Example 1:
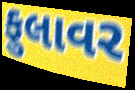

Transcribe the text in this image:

ફુલાવર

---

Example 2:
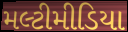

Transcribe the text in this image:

મલ્ટીમીડિયા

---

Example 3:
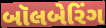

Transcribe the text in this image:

બૉલબેરિંગ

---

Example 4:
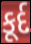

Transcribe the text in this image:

કૂર્દ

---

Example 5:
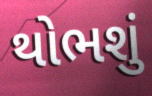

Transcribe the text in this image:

થોભશું